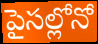
పైసల్లోనో